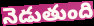
నెడుతుంది